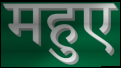
महुए